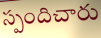
స్పందిచారు